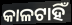
କାଳଟାହିଁ